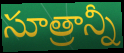
సూత్రాన్నీ